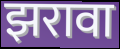
झरावा